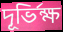
দূর্ভিক্ষ